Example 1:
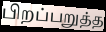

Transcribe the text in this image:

பிறப்பறுத்த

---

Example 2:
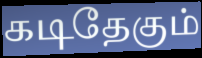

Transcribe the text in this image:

கடிதேகும்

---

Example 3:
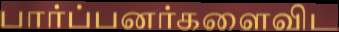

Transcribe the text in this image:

பார்ப்பனர்களைவிட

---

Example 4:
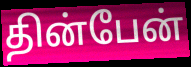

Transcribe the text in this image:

தின்பேன்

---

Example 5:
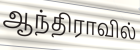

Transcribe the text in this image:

ஆந்திராவில்